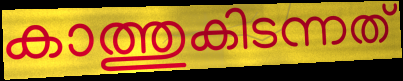
കാത്തുകിടന്നത്